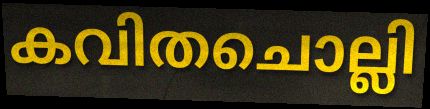
കവിതചൊല്ലി